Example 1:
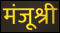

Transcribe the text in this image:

मंजूश्री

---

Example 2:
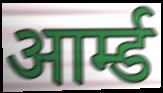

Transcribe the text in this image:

आर्म्ड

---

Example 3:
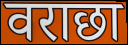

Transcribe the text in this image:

वराछा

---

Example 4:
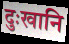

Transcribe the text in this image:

दुःखानि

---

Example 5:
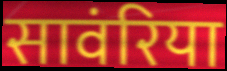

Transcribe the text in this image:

सावंरिया